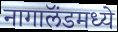
नागालॅंडमध्ये